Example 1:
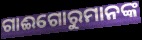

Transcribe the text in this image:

ଗାଈଗୋରୁମାନଙ୍କ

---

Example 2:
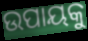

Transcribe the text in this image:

ଉପାୟକୁ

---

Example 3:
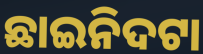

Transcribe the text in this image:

ଛାଇନିଦଟା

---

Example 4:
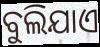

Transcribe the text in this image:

ବୁଲିଯାଏ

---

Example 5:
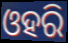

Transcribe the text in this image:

ଓହରି